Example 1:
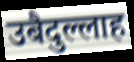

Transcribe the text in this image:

उबैदुल्लाह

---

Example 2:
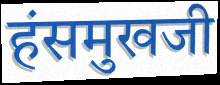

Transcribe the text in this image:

हंसमुखजी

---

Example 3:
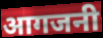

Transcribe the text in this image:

आगजनी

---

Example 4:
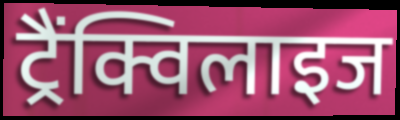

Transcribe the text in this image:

ट्रैंक्विलाइज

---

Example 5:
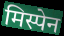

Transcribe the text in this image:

मिस्पेन